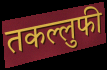
तकल्लुफी